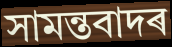
সামন্তবাদৰ